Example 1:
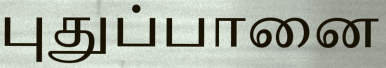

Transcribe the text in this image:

புதுப்பானை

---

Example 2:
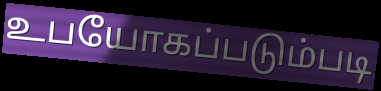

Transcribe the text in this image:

உபயோகப்படும்படி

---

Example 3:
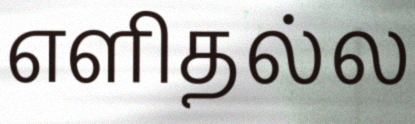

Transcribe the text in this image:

எளிதல்ல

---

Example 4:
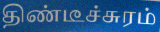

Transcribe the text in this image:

திண்டீச்சுரம்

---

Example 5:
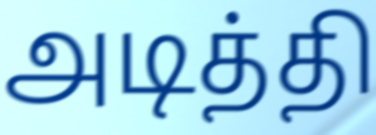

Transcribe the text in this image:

அடித்தி